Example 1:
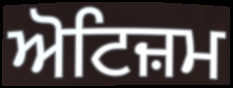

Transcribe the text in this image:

ਅੋਟਿਜ਼ਮ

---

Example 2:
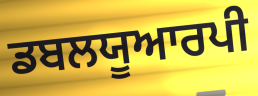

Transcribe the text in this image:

ਡਬਲਯੂਆਰਪੀ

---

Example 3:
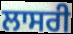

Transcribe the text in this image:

ਲਾਸਰੀ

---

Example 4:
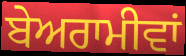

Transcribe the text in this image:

ਬੇਅਰਾਮੀਵਾਂ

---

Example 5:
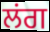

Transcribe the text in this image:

ਲਂਗ